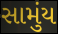
સામુંય